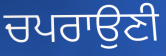
ਚਪਰਾਉਣੀ